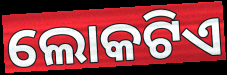
ଲୋକଟିଏ